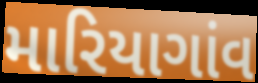
મારિયાગાંવ